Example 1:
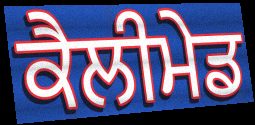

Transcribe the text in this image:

ਕੈਲੀਮੇਡ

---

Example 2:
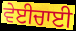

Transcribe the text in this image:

ਵੇਈਚਾਈ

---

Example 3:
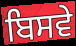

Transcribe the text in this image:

ਬਿਸਵੇ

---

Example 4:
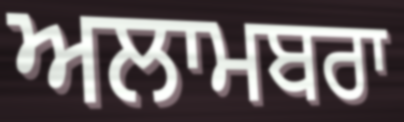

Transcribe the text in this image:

ਅਲਾਮਬਰਾ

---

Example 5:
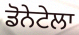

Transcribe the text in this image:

ਡੋਨੇਟੇਲਾ